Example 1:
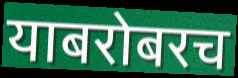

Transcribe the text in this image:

याबरोबरच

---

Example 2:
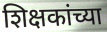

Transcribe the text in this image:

शिक्षकांच्या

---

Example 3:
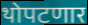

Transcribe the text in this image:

थोपटणार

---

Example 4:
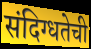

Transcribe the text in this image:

संदिग्धतेची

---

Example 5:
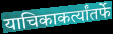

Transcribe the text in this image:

याचिकाकर्त्यांतर्फे